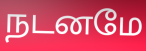
நடனமே